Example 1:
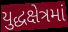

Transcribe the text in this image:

યુદ્ધક્ષેત્રમાં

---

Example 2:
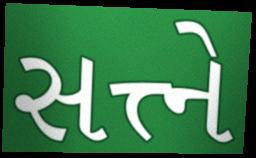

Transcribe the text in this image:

સત્ત્ને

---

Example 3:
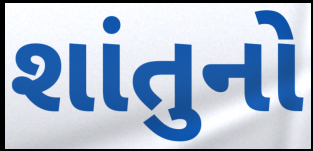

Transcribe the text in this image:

શાંતુનો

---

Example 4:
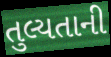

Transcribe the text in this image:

તુલ્યતાની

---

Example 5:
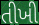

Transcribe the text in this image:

તીખી